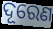
ଦୂରେଣ